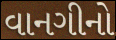
વાનગીનો